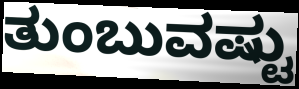
ತುಂಬುವಷ್ಟು